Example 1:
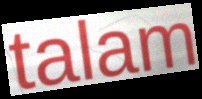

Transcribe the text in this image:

talam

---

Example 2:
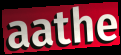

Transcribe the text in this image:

aathe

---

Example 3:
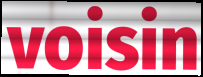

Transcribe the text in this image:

voisin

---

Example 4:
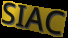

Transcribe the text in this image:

SIAC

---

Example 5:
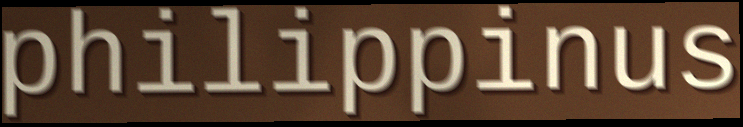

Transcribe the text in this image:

philippinus